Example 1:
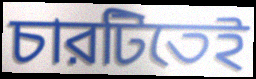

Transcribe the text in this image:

চারটিতেই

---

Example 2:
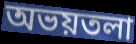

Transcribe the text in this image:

অভয়তলা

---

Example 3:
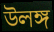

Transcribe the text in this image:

উলঙ্গ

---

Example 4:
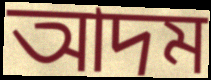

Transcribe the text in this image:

আদম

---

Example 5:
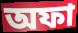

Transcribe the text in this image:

অফা